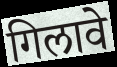
गिलावे